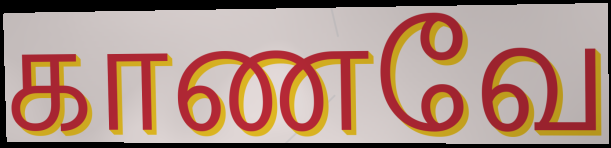
காணவே